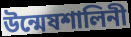
উন্মেষশালিনী